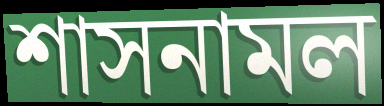
শাসনামল